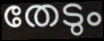
തേടും